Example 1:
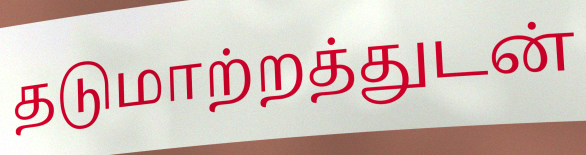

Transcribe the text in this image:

தடுமாற்றத்துடன்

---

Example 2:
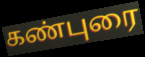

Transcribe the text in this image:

கண்புரை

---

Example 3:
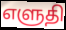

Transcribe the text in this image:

எளுதி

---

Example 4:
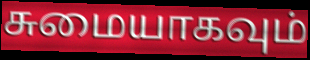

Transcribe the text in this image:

சுமையாகவும்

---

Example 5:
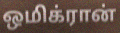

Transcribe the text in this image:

ஒமிக்ரான்